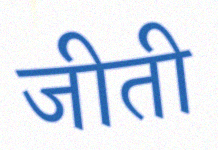
जीती